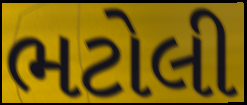
ભટોલી